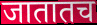
जातातच